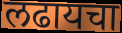
लढायचा